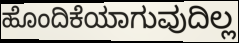
ಹೊಂದಿಕೆಯಾಗುವುದಿಲ್ಲ